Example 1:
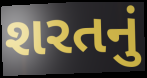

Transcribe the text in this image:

શરતનું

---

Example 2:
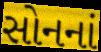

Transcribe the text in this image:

સોનનાં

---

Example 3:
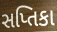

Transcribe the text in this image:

સપ્તિકા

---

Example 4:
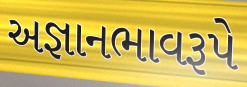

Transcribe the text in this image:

અજ્ઞાનભાવરૂપે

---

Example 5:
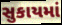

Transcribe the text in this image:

સુકાયમાં